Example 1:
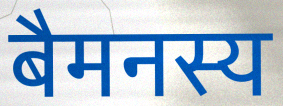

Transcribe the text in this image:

बैमनस्य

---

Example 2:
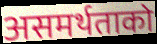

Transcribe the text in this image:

असमर्थताको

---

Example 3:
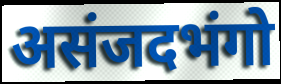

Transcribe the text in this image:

असंजदभंगो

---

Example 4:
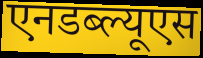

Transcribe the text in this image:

एनडब्ल्यूएस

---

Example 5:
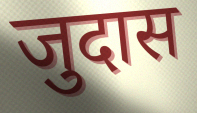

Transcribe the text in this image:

जुदास